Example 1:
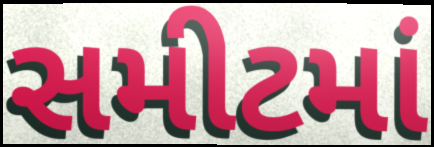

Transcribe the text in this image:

સમીટમાં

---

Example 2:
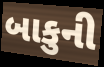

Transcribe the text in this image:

બાકુની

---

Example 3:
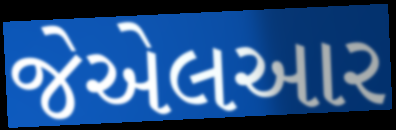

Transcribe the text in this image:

જેએલઆર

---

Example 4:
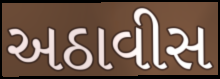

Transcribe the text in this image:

અઠાવીસ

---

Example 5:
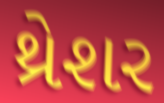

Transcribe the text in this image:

થ્રેશર